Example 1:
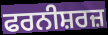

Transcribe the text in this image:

ਫਰਨੀਸ਼ਰਜ਼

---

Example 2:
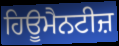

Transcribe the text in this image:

ਹਿਊਮੈਨਟੀਜ਼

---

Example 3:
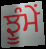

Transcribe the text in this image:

ਝੂੰਮੇਂ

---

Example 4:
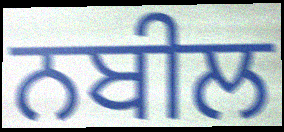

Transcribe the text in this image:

ਨਬੀਲ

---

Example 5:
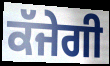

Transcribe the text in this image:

ਕੱਜੇਗੀ